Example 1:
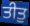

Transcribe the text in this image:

ਤੀਤੁ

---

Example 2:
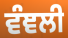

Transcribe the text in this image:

ਵੰਞਲੀ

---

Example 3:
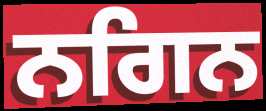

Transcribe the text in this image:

ਨਗਿਨ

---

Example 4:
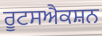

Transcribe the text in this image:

ਰੂਟਸਐਕਸ਼ਨ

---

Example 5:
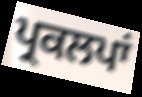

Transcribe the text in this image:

ਪ੍ਰਕਲਪਾਂ